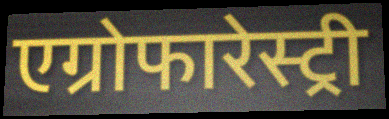
एग्रोफारेस्ट्री